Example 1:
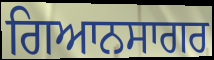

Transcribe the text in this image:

ਗਿਆਨਸਾਗਰ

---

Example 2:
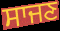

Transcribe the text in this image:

ਸਾਜਣ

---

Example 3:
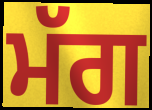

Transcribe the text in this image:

ਮੱਗ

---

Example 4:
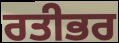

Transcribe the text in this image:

ਰਤੀਭਰ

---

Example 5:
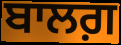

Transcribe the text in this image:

ਬਾਲਗ਼